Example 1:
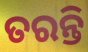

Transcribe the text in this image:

ତରନ୍ତି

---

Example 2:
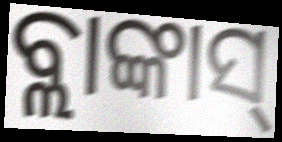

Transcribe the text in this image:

ବ୍ଲାଙ୍କାସ୍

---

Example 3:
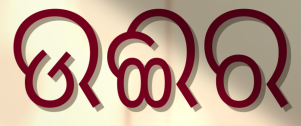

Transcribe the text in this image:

ଉଈର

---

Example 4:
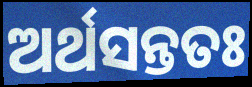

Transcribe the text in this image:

ଅର୍ଥସନ୍ତତଃ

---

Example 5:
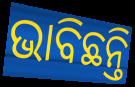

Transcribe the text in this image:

ଭାବିଛନ୍ତି